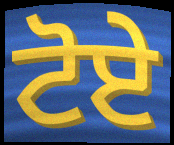
ਟੋਏ